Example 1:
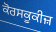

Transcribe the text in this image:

ਕੋਰਸਕੂਕੀਜ਼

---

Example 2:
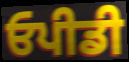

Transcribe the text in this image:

ਓਪੀਡੀ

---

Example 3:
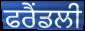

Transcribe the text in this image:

ਫਰੈਂਡਲੀ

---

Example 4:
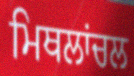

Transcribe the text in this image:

ਮਿਥਲਾਂਚਲ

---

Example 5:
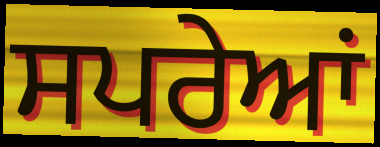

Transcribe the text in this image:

ਸਪਰੇਆਂ